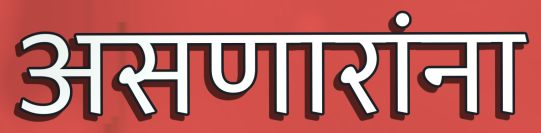
असणारांना